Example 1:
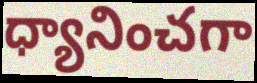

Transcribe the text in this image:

ధ్యానించగా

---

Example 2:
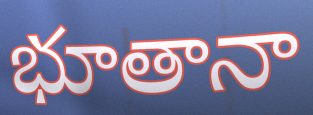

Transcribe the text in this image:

భూతానా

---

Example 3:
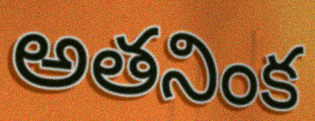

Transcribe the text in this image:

అతనింక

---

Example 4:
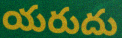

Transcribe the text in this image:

యరుదు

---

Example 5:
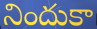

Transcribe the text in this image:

నిందుకా